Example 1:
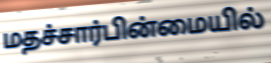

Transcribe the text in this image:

மதச்சார்பின்மையில்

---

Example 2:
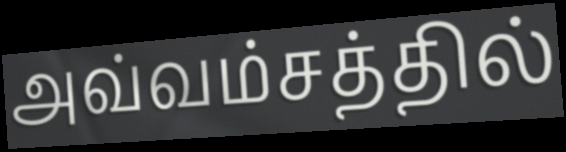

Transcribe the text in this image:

அவ்வம்சத்தில்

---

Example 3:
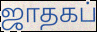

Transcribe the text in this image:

ஜாதகப்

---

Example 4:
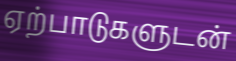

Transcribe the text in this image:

ஏற்பாடுகளுடன்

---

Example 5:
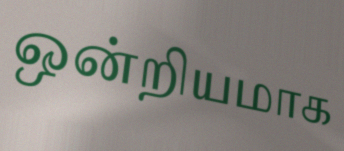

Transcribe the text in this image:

ஒன்றியமாக